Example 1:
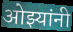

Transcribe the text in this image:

ओझ्यांनी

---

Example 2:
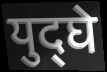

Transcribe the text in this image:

युद्घे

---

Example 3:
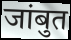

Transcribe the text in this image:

जांबुत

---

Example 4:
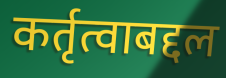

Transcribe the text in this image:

कर्तृत्वाबद्दल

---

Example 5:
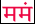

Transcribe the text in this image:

ममं